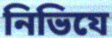
নিভিযে